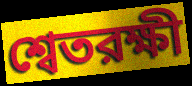
শ্বেতরক্ষী